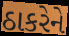
ઠાકરેને